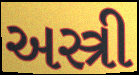
અસ્ત્રી